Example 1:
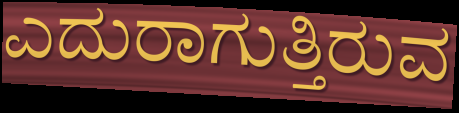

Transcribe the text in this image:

ಎದುರಾಗುತ್ತಿರುವ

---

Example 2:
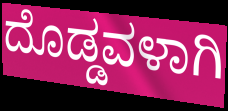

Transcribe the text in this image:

ದೊಡ್ಡವಳಾಗಿ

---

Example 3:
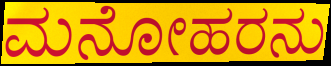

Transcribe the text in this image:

ಮನೋಹರನು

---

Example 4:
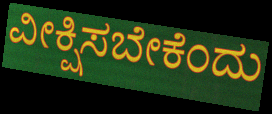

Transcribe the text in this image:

ವೀಕ್ಷಿಸಬೇಕೆಂದು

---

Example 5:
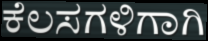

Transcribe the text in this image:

ಕೆಲಸಗಳಿಗಾಗಿ